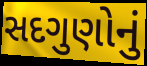
સદગુણોનું